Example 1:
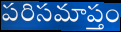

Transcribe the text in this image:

పరిసమాప్తం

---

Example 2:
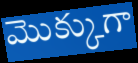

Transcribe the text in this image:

మొక్కుగా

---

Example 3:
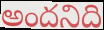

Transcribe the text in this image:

అందనిది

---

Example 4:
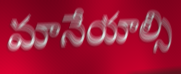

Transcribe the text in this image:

మానేయాల్సి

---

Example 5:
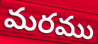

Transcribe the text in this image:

మరము